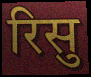
रिसु